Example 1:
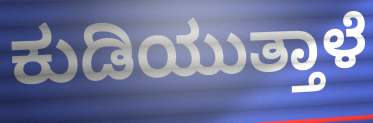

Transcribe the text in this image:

ಕುಡಿಯುತ್ತಾಳೆ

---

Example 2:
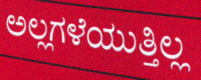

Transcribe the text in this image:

ಅಲ್ಲಗಳೆಯುತ್ತಿಲ್ಲ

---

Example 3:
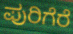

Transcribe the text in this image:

ಪುರಿಗೆರೆ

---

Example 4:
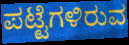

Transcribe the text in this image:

ಪಟ್ಟೆಗಳಿರುವ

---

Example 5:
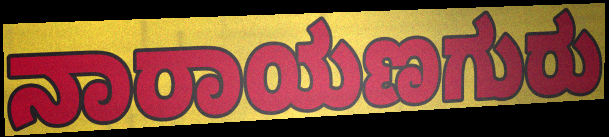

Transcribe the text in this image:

ನಾರಾಯಣಗುರು